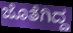
ಜೊತೆಗಿದ್ದ